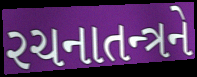
રચનાતન્ત્રને